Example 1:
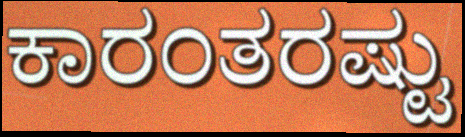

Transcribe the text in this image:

ಕಾರಂತರಷ್ಟು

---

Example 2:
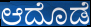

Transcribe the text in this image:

ಆದೊಡೆ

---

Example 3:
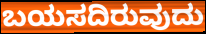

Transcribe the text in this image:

ಬಯಸದಿರುವುದು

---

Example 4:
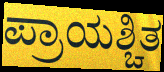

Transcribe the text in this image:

ಪ್ರಾಯಶ್ಚಿತ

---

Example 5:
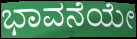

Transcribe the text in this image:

ಭಾವನೆಯೇ